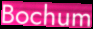
Bochum